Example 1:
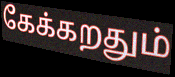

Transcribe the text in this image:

கேக்கறதும்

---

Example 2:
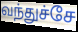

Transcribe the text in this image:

வந்துச்சே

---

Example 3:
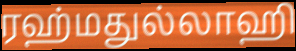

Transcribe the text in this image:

ரஹ்மதுல்லாஹி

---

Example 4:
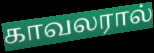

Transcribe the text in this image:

காவலரால்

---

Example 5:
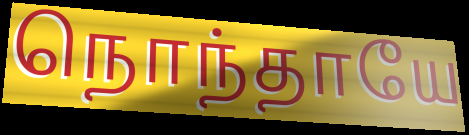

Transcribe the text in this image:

நொந்தாயே